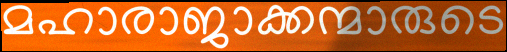
മഹാരാജാക്കന്മാരുടെ